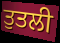
ਤੁਤਲੀ